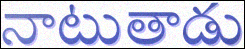
నాటుతాడు